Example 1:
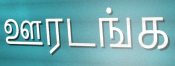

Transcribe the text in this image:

ஊரடங்க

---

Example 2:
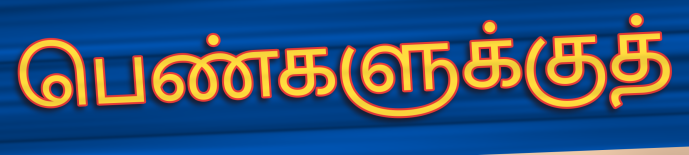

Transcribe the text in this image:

பெண்களுக்குத்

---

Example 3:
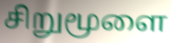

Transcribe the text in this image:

சிறுமூளை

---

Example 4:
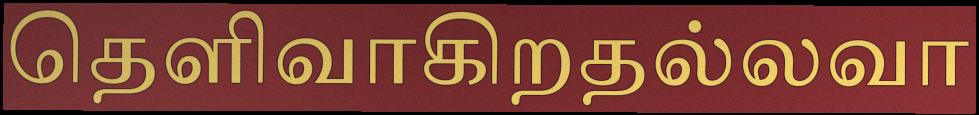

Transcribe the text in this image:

தெளிவாகிறதல்லவா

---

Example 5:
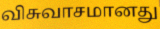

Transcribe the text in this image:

விசுவாசமானது